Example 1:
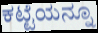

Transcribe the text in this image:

ಕಟ್ಟೆಯನ್ನೂ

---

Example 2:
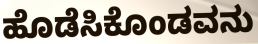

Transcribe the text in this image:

ಹೊಡೆಸಿಕೊಂಡವನು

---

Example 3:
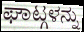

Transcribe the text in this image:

ಘಾಟ್ಗಳನ್ನು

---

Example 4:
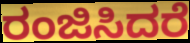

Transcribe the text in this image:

ರಂಜಿಸಿದರೆ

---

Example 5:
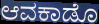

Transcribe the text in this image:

ಆವಕಾಡೊ